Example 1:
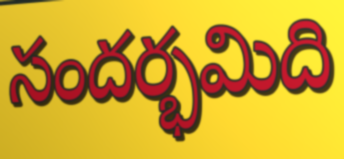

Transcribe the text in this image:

సందర్భమిది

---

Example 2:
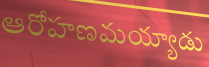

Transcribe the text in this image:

ఆరోహణమయ్యాడు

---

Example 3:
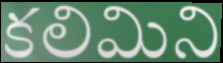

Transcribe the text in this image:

కలిమిని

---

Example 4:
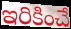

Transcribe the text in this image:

ఇరికించే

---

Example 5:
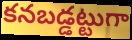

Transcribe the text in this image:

కనబడ్డట్టుగా